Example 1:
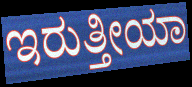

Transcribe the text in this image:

ಇರುತ್ತೀಯಾ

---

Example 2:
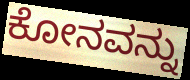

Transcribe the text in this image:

ಕೋನವನ್ನು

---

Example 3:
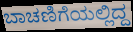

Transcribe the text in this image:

ಬಾಚಣಿಗೆಯಲ್ಲಿದ್ದ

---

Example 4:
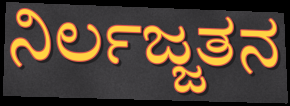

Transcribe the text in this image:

ನಿರ್ಲಜ್ಜತನ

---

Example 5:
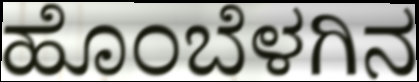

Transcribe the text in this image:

ಹೊಂಬೆಳಗಿನ